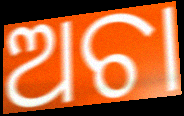
ଅଚା